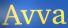
Avva